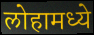
लोहामध्ये